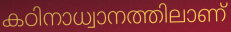
കഠിനാധ്വാനത്തിലാണ്